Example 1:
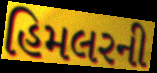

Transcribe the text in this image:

હિમલરની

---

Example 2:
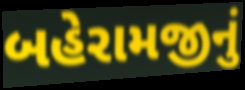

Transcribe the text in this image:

બહેરામજીનું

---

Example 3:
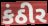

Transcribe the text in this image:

કંઠીર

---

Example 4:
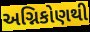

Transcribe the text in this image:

અગ્નિકોણથી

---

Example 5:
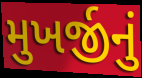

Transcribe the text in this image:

મુખર્જીનું